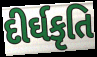
દીર્ઘકૃતિ